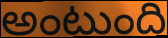
అంటుంది